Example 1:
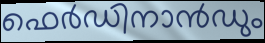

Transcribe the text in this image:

ഫെർഡിനാൻഡും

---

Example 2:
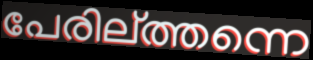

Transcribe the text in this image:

പേരില്ത്തന്നെ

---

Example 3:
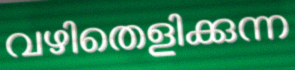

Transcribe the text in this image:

വഴിതെളിക്കുന്ന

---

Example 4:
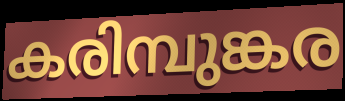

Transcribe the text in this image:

കരിമ്പുങ്കര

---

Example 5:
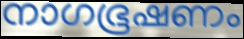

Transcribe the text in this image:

നാഗഭൂഷണം